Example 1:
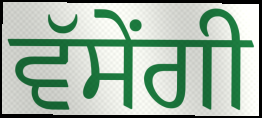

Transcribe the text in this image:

ਵੱਸੇਂਗੀ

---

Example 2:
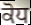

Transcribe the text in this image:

ਕੋਧ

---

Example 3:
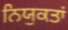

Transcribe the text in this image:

ਨਿਯੁਕਤਾਂ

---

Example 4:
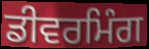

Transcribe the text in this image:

ਡੀਵਰਮਿੰਗ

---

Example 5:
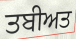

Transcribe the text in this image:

ਤਬੀਅਤ